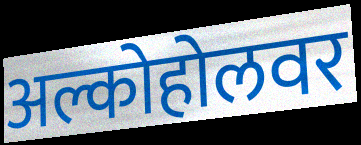
अल्कोहोलवर